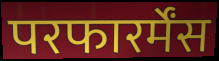
परफारर्मेंस